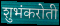
शुभंकरोती